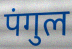
पंगुल